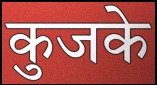
कुजके